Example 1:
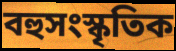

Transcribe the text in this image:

বহুসংস্কৃতিক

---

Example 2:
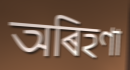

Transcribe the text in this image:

অৰিহণা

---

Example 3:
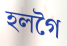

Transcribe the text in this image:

হলগৈ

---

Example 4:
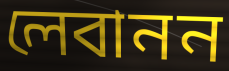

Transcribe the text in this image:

লেবানন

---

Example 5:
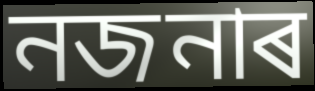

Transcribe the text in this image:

নজনাৰ